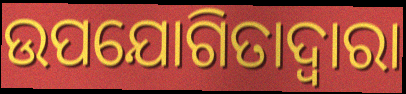
ଉପଯୋଗିତାଦ୍ୱାରା